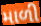
માળી